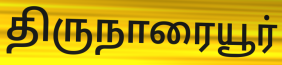
திருநாரையூர்